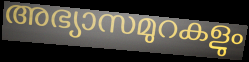
അഭ്യാസമുറകളും